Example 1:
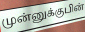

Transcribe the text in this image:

முன்னுக்குபின்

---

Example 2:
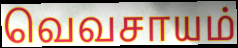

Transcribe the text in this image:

வெவசாயம்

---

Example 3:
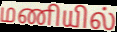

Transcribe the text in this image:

மணியில்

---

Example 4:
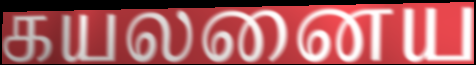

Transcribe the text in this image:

கயலனைய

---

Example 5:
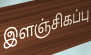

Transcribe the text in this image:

இளஞ்சிகப்பு